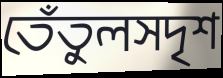
তেঁতুলসদৃশ